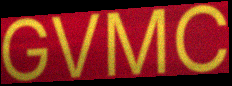
GVMC